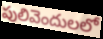
పులివెందులలో